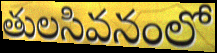
తులసివనంలో